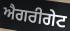
ਐਗਰੀਗੇਟ